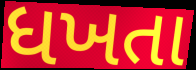
ધખતા